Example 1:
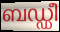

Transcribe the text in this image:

ബഡ്ഡീ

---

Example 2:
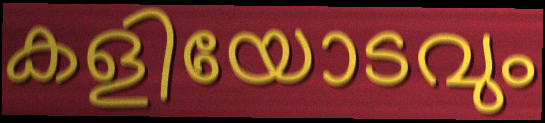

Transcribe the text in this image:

കളിയോടവും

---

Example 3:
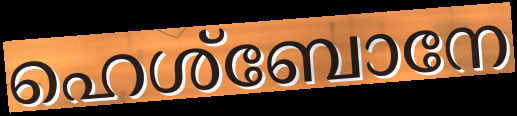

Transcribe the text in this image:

ഹെശ്ബോനേ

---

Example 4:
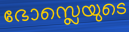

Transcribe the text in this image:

ഭോസ്ലെയുടെ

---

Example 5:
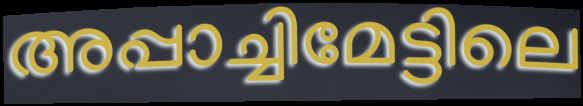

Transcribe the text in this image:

അപ്പാച്ചിമേട്ടിലെ